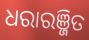
ଧରାରଞ୍ଜିତ